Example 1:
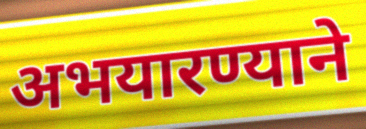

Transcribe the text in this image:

अभयारण्याने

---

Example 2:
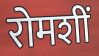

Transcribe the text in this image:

रोमशीं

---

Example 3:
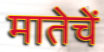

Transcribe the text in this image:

मातेचें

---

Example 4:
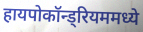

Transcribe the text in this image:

हायपोकॉन्ड्रियममध्ये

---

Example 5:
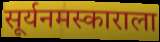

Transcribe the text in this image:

सूर्यनमस्काराला